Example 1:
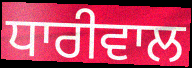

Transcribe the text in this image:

ਧਾਰੀਵਾਲ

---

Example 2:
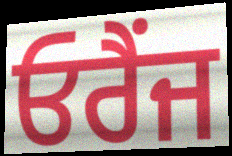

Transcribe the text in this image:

ਓਰੈਂਜ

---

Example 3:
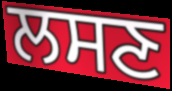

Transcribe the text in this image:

ਲਸਣ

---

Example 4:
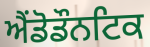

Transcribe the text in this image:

ਐਂਡੋਡੌਨਟਿਕ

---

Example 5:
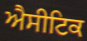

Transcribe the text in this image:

ਐਸੀਟਿਕ